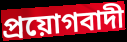
প্রয়োগবাদী